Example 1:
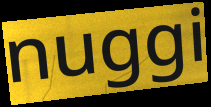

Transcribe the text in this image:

nuggi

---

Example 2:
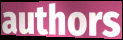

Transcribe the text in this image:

authors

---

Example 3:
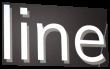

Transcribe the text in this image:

line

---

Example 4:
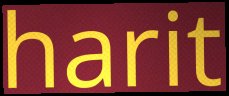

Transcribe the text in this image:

harit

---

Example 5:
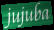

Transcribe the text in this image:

jujuba